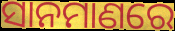
ସାନମାଣରେ